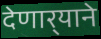
देणार्‍याने